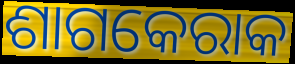
ଶାଗକେରାକ